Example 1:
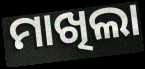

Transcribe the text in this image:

ମାଖିଲା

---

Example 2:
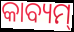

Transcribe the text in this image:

କାବ୍ୟମ୍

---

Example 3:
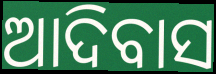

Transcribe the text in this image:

ଆଦିବାସ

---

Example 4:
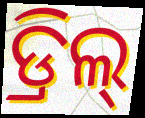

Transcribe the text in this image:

ଡ୍ରିଲ୍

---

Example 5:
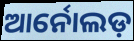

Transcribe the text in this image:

ଆର୍ନୋଲଡ଼